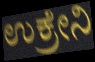
ಉಕ್ರೇನಿ